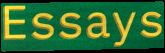
Essays